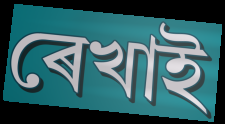
ৰেখাই